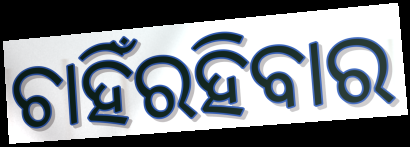
ଚାହିଁରହିବାର